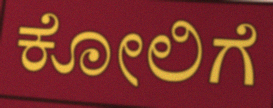
ಕೋಲಿಗೆ